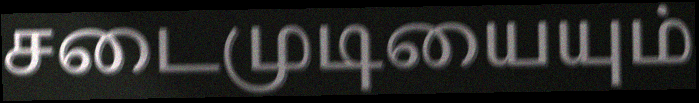
சடைமுடியையும்